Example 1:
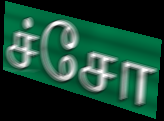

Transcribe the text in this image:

ச்சோ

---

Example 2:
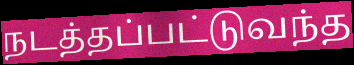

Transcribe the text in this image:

நடத்தப்பட்டுவந்த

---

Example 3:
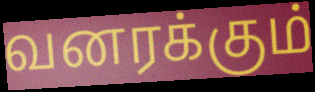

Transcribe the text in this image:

வனரக்கும்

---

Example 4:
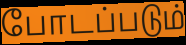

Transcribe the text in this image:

போடப்படும்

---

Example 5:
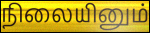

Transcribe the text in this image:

நிலையினும்